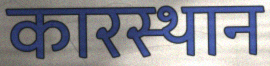
कारस्थान